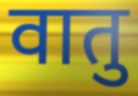
वातु